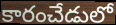
కారంచేడులో